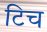
टिच